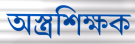
অস্ত্রশিক্ষক